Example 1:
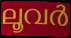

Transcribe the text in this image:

ലൂവർ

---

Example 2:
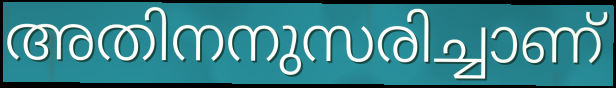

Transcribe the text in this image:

അതിനനുസരിച്ചാണ്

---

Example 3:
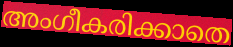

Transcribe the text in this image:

അംഗീകരിക്കാതെ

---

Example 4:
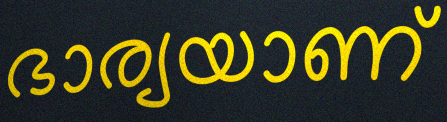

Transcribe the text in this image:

ഭാര്യയാണ്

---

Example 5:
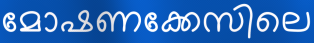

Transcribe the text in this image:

മോഷണക്കേസിലെ